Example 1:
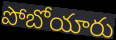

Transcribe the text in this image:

పోబోయారు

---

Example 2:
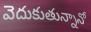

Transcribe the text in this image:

వెదుకుతున్నానో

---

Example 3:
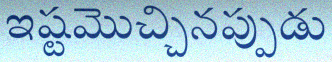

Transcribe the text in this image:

ఇష్టమొచ్చినప్పుడు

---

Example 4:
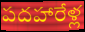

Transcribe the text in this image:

పదహారేళ్ల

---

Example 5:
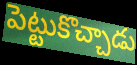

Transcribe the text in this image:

పెట్టుకొచ్చాడు